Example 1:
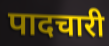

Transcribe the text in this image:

पादचारी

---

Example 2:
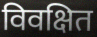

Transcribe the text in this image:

विवक्षित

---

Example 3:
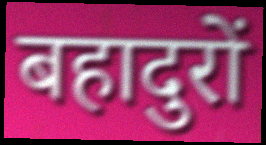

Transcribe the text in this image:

बहादुरों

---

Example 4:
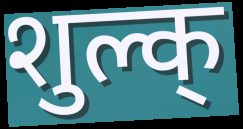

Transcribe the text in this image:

शुल्क्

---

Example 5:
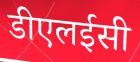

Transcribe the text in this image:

डीएलईसी